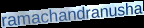
ramachandranusha